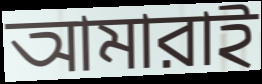
আমারাই